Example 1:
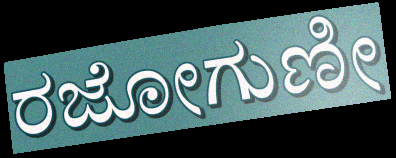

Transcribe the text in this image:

ರಜೋಗುಣೀ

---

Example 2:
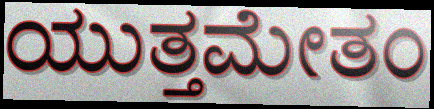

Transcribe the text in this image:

ಯುತ್ತಮೇತಂ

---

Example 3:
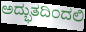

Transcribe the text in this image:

ಅದ್ಭುತದಿಂದಲಿ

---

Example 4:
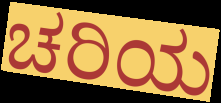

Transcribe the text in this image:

ಚರಿಯ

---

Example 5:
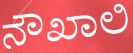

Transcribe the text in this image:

ನೌಖಾಲಿ